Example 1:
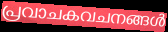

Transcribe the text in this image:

പ്രവാചകവചനങ്ങൾ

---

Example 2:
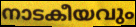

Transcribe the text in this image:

നാടകീയവും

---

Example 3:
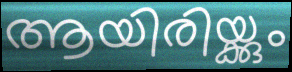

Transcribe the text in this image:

ആയിരിയ്ക്കും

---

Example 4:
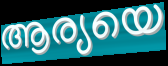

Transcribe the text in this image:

ആര്യയെ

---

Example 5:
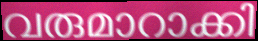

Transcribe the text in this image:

വരുമാറാക്കി